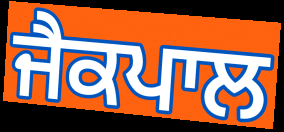
ਜੈਕਪਾਲ